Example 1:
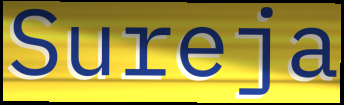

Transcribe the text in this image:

Sureja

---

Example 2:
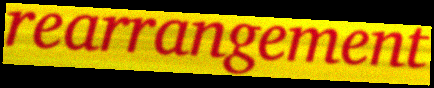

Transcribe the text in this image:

rearrangement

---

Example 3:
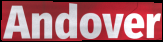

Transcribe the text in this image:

Andover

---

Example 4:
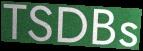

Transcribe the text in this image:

TSDBs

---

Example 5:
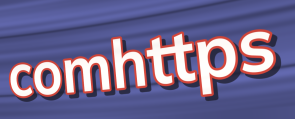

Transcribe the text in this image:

comhttps